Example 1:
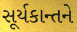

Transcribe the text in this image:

સૂર્યકાન્તને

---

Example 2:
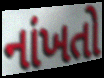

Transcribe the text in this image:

નાંખતો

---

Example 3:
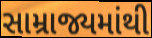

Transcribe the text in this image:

સામ્રાજ્યમાંથી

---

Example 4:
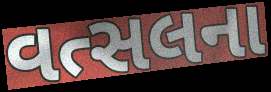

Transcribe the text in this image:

વત્સલના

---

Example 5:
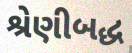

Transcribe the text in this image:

શ્રેણીબદ્ધ